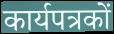
कार्यपत्रकों